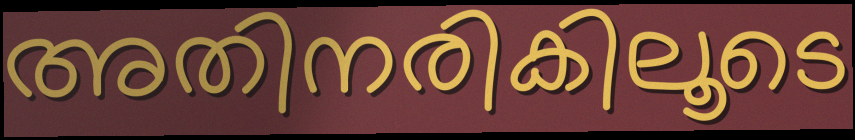
അതിനരികിലൂടെ